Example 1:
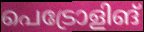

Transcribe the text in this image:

പെട്രോളിങ്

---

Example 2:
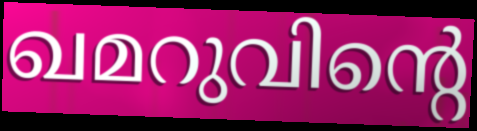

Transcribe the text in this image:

ഖമറുവിന്റെ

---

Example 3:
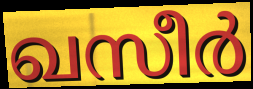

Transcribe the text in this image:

ഖസീർ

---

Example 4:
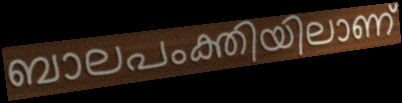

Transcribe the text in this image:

ബാലപംക്തിയിലാണ്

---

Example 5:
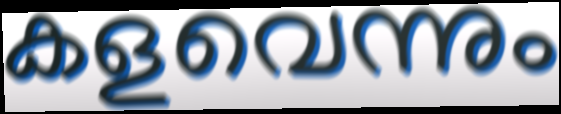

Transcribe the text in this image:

കളവെന്നും